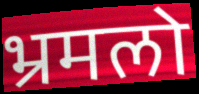
भ्रमलो